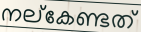
നല്കേണ്ടത്